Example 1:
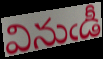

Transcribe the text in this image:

వినుఁడీ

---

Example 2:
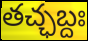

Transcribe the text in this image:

తచ్ఛబ్దః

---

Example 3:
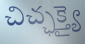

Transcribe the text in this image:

చిచ్ఛక్త్యై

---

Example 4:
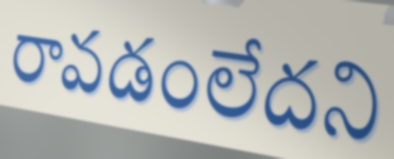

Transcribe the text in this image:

రావడంలేదని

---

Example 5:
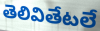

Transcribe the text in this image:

తెలివితేటలే